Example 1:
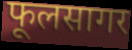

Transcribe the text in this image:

फूलसागर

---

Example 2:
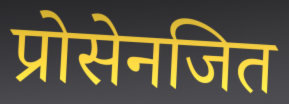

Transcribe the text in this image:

प्रोसेनजित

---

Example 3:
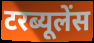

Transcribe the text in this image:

टरब्यूलेंस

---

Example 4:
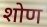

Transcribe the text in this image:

शोण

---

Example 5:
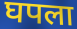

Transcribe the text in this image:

घपला